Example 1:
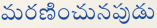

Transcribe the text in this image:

మరణించునపుడు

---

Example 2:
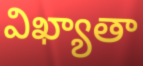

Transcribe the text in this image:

విఖ్యాతా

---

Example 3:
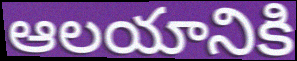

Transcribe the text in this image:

ఆలయానికి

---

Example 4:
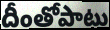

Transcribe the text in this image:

దీంతోపాటు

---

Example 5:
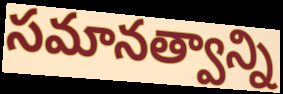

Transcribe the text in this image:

సమానత్వాన్ని